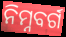
ନିମ୍ନବର୍ଗ